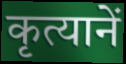
कृत्यानें